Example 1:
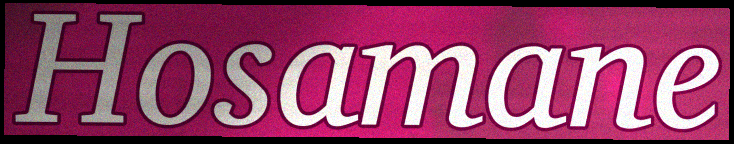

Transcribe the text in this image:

Hosamane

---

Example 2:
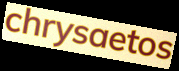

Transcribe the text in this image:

chrysaetos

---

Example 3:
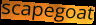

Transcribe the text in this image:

scapegoat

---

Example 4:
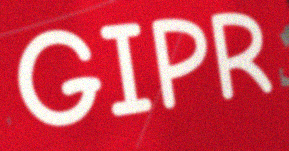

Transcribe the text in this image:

GIPR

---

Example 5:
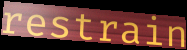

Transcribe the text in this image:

restrain